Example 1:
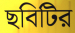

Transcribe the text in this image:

ছবিটির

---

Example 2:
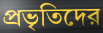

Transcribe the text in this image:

প্রভৃতিদের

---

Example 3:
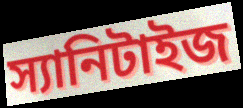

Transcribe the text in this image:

স্যানিটাইজ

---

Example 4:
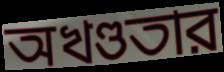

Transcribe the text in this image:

অখণ্ডতার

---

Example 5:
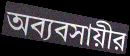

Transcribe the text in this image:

অব্যবসায়ীর